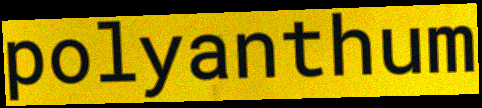
polyanthum